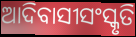
ଆଦିବାସୀସଂସ୍କୃତି